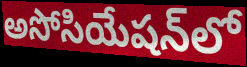
అసోసియేషన్‌లో